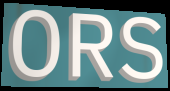
ORS